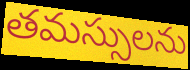
తమస్సులను